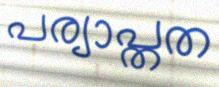
പര്യാപ്തത